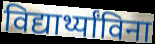
विद्यार्थ्यांविना